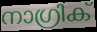
നാഗ്രിക്